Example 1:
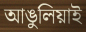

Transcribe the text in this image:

আঙুলিয়াই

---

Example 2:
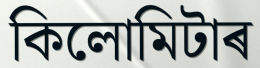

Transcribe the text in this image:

কিলোমিটাৰ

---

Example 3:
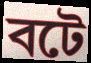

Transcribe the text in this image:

বটে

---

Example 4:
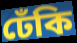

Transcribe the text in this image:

ঢেঁকি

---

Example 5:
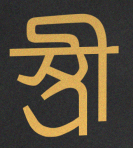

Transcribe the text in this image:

স্ত্ৰী